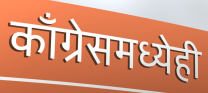
काँग्रेसमध्येही